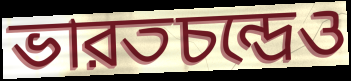
ভারতচন্দ্রেও